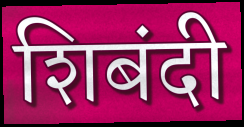
शिबंदी